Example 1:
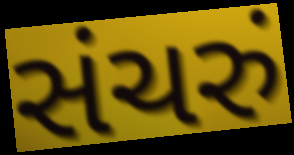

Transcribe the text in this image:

સંચરું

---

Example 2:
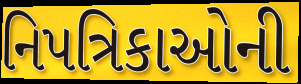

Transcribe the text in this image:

નિપત્રિકાઓની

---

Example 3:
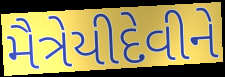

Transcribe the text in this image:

મૈત્રેયીદેવીને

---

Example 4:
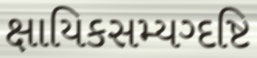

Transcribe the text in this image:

ક્ષાયિકસમ્યગ્દષ્ટિ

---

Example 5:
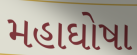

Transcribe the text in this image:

મહાઘોષા